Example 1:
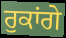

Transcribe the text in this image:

ਰੁਕਾਂਗੇ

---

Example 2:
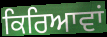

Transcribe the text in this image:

ਕਿਰਿਆਵਾਂ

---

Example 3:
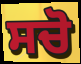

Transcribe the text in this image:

ਸਚੋ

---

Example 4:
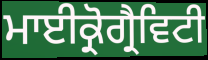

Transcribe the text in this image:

ਮਾਈਕ੍ਰੋਗ੍ਰੈਵਿਟੀ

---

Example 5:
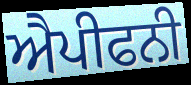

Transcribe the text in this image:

ਐਪੀਫਨੀ